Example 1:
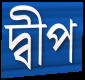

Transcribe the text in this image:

দ্বীপ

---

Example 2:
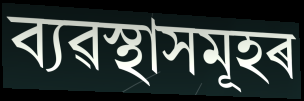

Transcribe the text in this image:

ব্যৱস্থাসমূহৰ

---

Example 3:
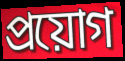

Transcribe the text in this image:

প্ৰয়োগ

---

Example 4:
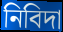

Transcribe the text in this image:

নিবিদা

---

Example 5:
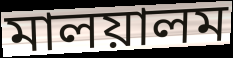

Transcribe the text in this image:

মালয়ালম